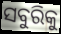
ସବୁରିକୁ